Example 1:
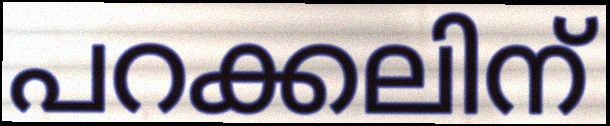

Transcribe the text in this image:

പറക്കലിന്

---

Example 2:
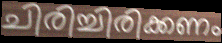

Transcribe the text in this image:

ചിരിച്ചിരിക്കണം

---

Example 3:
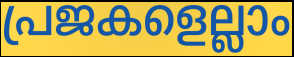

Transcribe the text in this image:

പ്രജകളെല്ലാം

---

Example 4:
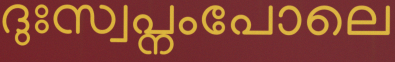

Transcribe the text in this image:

ദുഃസ്വപ്നംപോലെ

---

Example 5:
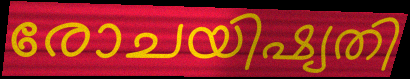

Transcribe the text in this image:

രോചയിഷ്യതി